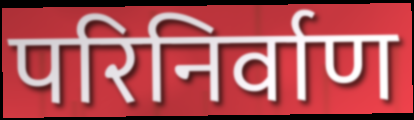
परिनिर्वाण